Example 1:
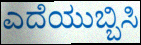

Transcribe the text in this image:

ಎದೆಯುಬ್ಬಿಸಿ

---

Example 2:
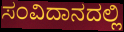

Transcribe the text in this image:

ಸಂವಿದಾನದಲ್ಲಿ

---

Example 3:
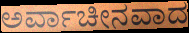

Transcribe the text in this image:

ಅರ್ವಾಚೀನವಾದ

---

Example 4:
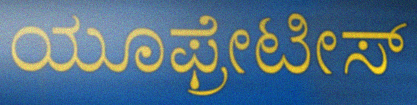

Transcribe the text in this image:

ಯೂಫ್ರೇಟೀಸ್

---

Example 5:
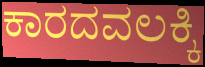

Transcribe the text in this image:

ಕಾರದವಲಕ್ಕಿ